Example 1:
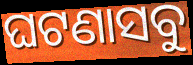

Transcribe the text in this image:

ଘଟଣାସବୁ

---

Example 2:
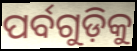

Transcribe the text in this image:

ପର୍ବଗୁଡ଼ିକୁ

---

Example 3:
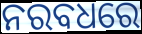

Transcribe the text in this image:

ନରବଧରେ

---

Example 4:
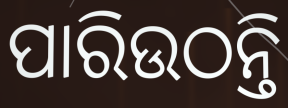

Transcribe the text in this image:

ପାରିଉଠନ୍ତି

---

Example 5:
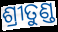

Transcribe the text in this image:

ଶ୍ରୀତୁଣ୍ଡ